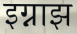
इग्नाझ